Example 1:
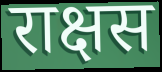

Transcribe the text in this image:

राक्षस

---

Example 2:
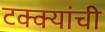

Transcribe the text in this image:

टक्क्यांची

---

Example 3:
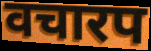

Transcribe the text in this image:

वचारप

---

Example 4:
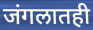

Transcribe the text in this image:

जंगलातही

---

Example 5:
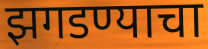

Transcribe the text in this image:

झगडण्याचा